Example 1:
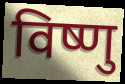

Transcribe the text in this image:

विष्‍णु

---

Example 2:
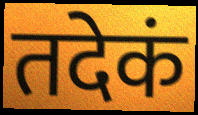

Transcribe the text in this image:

तदेकं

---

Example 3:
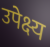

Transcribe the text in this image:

उपेक्ष्य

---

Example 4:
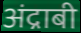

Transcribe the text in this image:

अंद्राबी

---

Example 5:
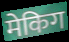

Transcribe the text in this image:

मेकिग